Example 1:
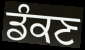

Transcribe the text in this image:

ਡੰਕਣ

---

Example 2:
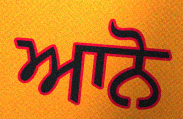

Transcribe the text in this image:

ਆਨੋ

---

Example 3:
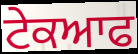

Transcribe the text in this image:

ਟੇਕਆਫ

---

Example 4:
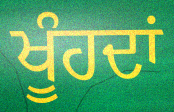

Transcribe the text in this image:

ਖੂੰਹਦਾਂ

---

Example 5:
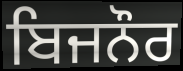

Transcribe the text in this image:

ਬਿਜਨੌਰ